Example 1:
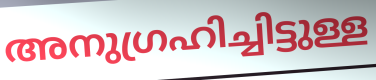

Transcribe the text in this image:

അനുഗ്രഹിച്ചിട്ടുള്ള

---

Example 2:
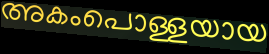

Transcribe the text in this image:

അകംപൊള്ളയായ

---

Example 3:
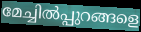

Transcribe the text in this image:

മേച്ചിൽപ്പുറങ്ങളെ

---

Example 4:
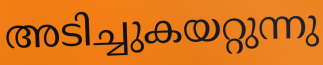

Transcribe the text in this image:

അടിച്ചുകയറ്റുന്നു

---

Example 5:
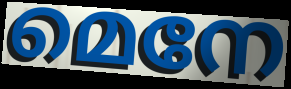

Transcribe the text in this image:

മെനേ